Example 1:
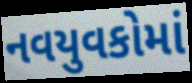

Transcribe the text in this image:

નવયુવકોમાં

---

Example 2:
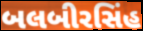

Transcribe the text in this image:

બલબીરસિંહ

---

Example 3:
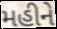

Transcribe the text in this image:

મહીને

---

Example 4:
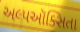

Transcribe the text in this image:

અલ્પઑક્સિતા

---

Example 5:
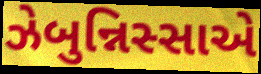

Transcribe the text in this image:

ઝેબુન્નિસ્સાએ